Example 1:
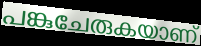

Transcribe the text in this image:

പങ്കുചേരുകയാണ്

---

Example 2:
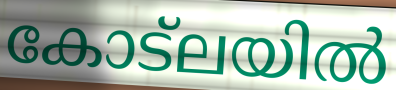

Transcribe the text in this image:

കോട്ലയിൽ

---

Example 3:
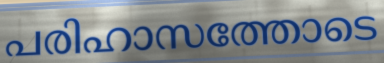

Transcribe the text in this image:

പരിഹാസത്തോടെ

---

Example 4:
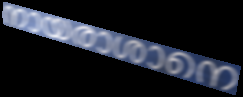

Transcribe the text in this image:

നായരാശാനെ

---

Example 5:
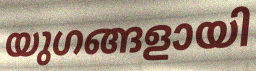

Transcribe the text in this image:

യുഗങ്ങളായി